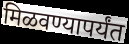
मिळवण्यापर्यंत